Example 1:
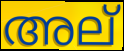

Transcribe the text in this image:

അല്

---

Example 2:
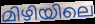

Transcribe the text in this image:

മിഴിയിലെ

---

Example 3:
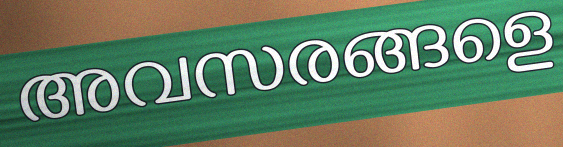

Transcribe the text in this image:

അവസരങ്ങളെ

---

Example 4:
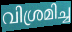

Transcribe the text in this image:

വിശ്രമിച്ച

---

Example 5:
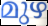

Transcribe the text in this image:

മുഴ